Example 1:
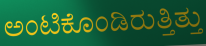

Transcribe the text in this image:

ಅಂಟಿಕೊಂಡಿರುತ್ತಿತ್ತು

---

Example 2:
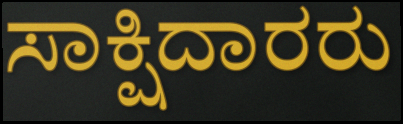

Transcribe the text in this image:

ಸಾಕ್ಷಿದಾರರು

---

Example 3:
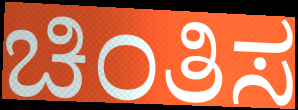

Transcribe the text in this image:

ಚಿಂತಿಸ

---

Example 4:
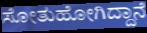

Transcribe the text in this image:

ಸೋತುಹೋಗಿದ್ದಾನೆ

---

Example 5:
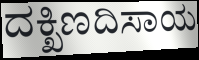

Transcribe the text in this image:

ದಕ್ಖಿಣದಿಸಾಯ